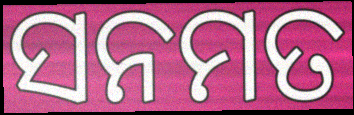
ସନମତ